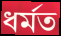
ধৰ্মত